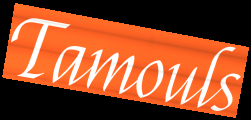
Tamouls